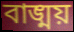
বাঙ্ময়